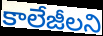
కాలేజీలని